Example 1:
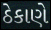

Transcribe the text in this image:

ઠેકાણે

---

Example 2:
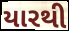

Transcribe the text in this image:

યારથી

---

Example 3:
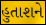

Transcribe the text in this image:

હુતાશને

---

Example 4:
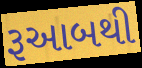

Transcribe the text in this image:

રૂઆબથી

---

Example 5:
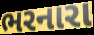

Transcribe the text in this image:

ભરનારા